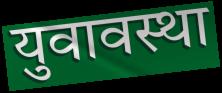
युवावस्था